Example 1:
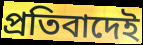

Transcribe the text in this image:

প্রতিবাদেই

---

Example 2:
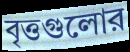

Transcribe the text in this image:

বৃত্তগুলোর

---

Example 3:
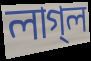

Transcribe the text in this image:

লাগ্‌ল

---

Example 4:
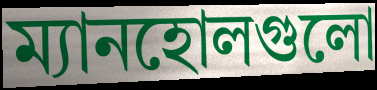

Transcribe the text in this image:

ম্যানহোলগুলো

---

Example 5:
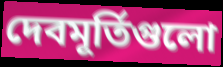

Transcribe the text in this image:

দেবমূর্তিগুলো